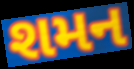
શમન